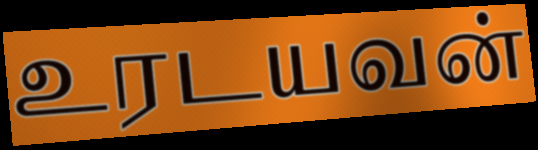
உரடயவன்